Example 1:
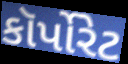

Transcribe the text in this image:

કૉર્પોરેટ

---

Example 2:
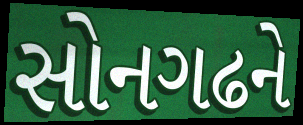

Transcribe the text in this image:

સોનગઢને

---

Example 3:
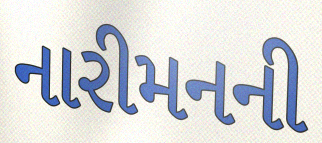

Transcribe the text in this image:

નારીમનની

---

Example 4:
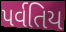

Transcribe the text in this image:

પર્વતિય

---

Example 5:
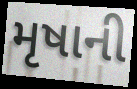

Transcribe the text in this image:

મૃષાની